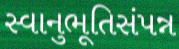
સ્વાનુભૂતિસંપન્ન